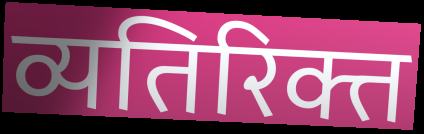
व्यतिरिक्त